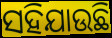
ସହିଯାଉଛି